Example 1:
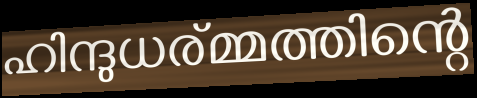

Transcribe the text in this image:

ഹിന്ദുധര്മ്മത്തിന്റെ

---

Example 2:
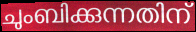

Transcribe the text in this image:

ചുംബിക്കുന്നതിന്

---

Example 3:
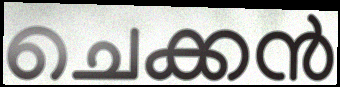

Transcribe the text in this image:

ചെക്കൻ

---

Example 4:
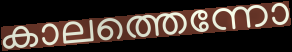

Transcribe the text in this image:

കാലത്തെന്നോ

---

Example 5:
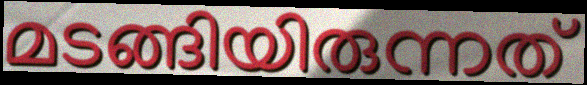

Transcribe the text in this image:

മടങ്ങിയിരുന്നത്